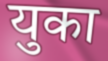
युका